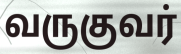
வருகுவர்